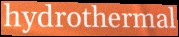
hydrothermal